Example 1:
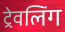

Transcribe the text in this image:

ट्रेवलिंग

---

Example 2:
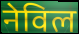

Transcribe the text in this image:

नेविल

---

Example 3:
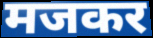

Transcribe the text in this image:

मजकर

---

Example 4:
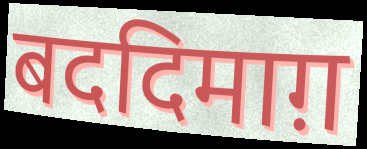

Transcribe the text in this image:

बददिमाग़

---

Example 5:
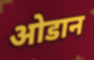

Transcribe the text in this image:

ओडान